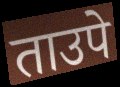
ताउपे